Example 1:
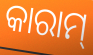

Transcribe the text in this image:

କାରାମ୍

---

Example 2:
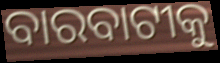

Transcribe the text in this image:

ବାରବାଟୀକୁ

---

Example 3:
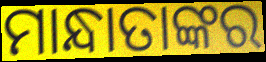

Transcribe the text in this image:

ମାନ୍ଧାତାଙ୍କର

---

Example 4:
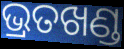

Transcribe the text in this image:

ଭ୍ରତଖଣ୍ଡ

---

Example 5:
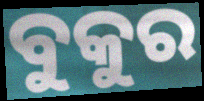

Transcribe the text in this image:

ବୁକୁର